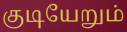
குடியேறும்